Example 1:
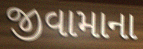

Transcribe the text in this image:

જીવામાના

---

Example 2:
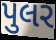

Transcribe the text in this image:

પુલર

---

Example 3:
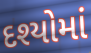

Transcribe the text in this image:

દશ્યોમાં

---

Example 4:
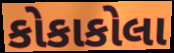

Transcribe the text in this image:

કોકાકોલા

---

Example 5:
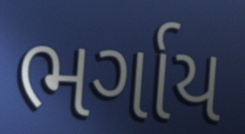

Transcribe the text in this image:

ભર્ગાય